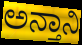
ಅನ್ತಾನಿ